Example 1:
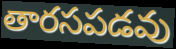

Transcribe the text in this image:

తారసపడవు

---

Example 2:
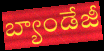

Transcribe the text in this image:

బ్యాండేజీ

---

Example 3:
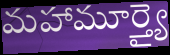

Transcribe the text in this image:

మహామూర్త్యై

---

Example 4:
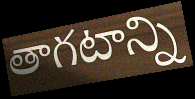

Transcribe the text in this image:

తాగటాన్ని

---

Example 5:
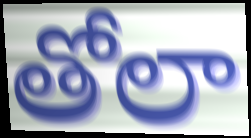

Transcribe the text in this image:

తోలా